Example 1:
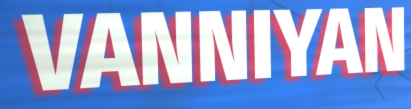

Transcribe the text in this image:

VANNIYAN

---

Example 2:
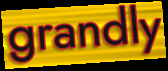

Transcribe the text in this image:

grandly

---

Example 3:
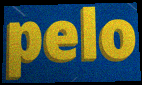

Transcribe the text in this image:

pelo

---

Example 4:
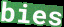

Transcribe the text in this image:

bies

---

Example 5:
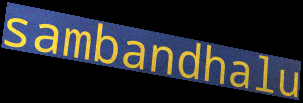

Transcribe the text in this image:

sambandhalu